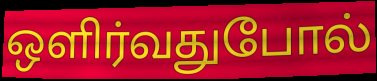
ஒளிர்வதுபோல்